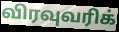
விரவுவரிக்